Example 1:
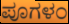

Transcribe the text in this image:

ಪೂಗಳಂ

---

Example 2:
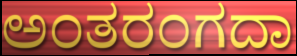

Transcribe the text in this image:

ಅಂತರಂಗದಾ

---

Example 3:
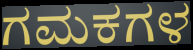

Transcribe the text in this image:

ಗಮಕಗಳ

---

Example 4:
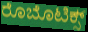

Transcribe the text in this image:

ರೊಬೊಟಿಕ್ಸ್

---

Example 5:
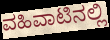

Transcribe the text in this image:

ವಹಿವಾಟಿನಲ್ಲಿ